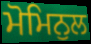
ਮੋਮਿਨੁਲ